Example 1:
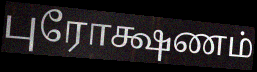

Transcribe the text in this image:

புரோக்ஷணம்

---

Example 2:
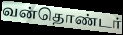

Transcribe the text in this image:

வன்தொண்டர்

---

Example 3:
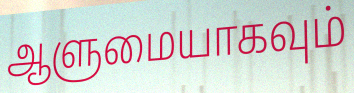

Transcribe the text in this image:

ஆளுமையாகவும்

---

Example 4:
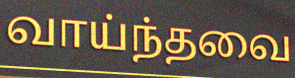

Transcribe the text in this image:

வாய்ந்தவை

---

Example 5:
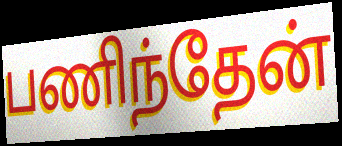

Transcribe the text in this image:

பணிந்தேன்